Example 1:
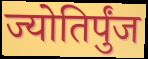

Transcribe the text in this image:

ज्योतिर्पुंज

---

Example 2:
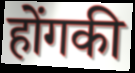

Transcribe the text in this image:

होंगकी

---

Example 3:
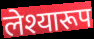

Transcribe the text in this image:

लेश्यारूप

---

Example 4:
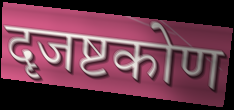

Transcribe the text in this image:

दृजष्टकोण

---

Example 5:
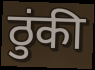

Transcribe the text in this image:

ठुंकी